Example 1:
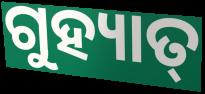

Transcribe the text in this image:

ଗୁହ୍ୟାତ୍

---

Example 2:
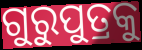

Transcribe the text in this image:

ଗୁରୁପୁତ୍ରକୁ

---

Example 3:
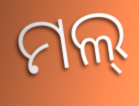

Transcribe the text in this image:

ମଲ୍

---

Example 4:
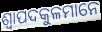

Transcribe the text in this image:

ଶ୍ୱାପଦକୁଳମାନେ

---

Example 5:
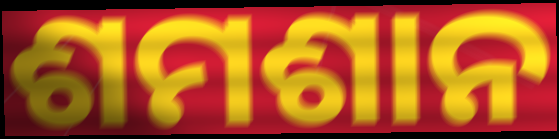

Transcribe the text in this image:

ଶମଶାନ